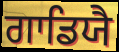
ਗਾਡਿਯੈ